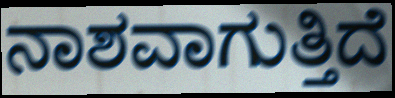
ನಾಶವಾಗುತ್ತಿದೆ